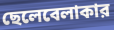
ছেলেবেলাকার